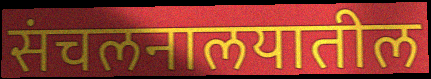
संचलनालयातील